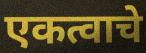
एकत्वाचे